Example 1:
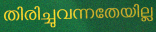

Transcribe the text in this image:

തിരിച്ചുവന്നതേയില്ല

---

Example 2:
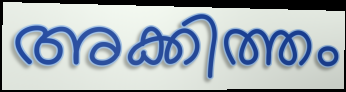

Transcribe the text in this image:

അക്കിത്തം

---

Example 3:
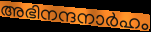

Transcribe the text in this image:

അഭിനന്ദനാർഹം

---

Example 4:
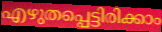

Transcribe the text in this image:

എഴുതപ്പെട്ടിരിക്കാം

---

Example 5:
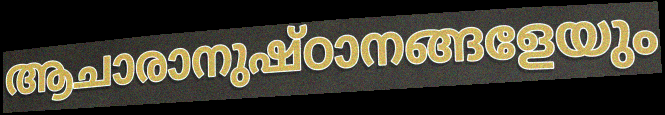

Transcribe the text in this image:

ആചാരാനുഷ്ഠാനങ്ങളേയും